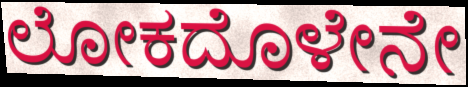
ಲೋಕದೊಳೇನೇ